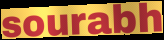
sourabh